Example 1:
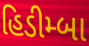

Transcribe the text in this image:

હિડીમ્બા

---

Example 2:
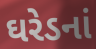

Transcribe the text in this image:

ઘરેડનાં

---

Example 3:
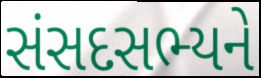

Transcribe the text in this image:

સંસદસભ્યને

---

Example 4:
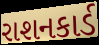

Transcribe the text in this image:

રાશનકાર્ડ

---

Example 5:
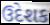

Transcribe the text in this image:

ઉદેશક